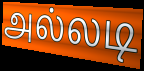
அல்லடி